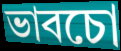
ভাবচো